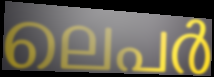
ലെപർ